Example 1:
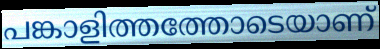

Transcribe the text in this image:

പങ്കാളിത്തത്തോടെയാണ്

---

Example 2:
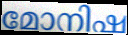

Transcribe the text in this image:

മോനിഷ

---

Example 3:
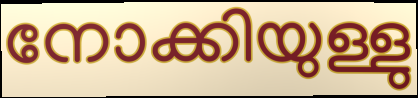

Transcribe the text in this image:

നോക്കിയുള്ളു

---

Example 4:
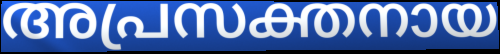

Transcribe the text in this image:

അപ്രസക്തനായ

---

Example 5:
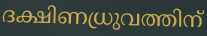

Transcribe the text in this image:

ദക്ഷിണധ്രുവത്തിന്